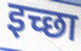
इच्छा